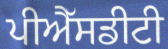
ਪੀਐੱਸਡੀਟੀ